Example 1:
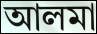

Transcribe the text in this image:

আলমা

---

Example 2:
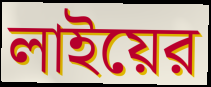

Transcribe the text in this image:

লাইয়ের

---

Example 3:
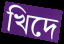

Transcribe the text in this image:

খিদে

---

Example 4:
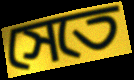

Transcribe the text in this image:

সেতে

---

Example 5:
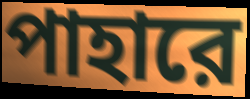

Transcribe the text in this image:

পাহারে